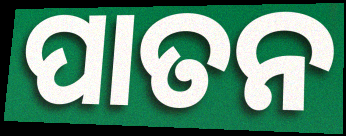
ପାତନ